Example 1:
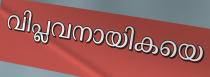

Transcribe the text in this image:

വിപ്ലവനായികയെ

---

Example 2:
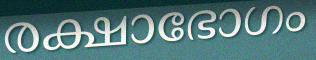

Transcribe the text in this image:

രക്ഷാഭോഗം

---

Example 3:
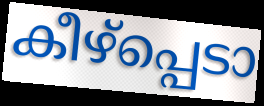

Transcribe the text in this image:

കീഴ്പ്പെടാ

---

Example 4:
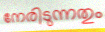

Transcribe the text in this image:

നേരിടുന്നതും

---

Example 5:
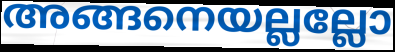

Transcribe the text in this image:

അങ്ങനെയല്ലല്ലോ